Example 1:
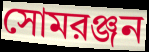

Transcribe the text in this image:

সোমরঞ্জন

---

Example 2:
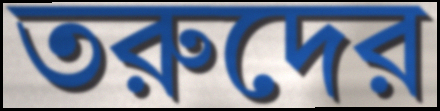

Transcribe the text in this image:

তরুদের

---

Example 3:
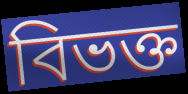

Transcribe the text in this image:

বিভক্ত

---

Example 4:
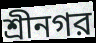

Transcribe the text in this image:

শ্রীনগর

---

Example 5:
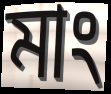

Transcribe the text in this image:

মাং